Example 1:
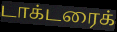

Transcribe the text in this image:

டாக்டரைக்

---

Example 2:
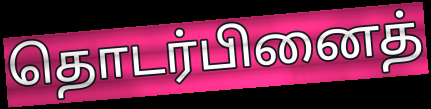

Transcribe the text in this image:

தொடர்பினைத்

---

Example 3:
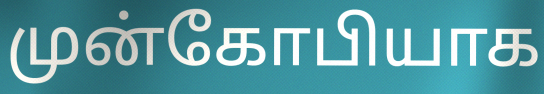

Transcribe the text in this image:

முன்கோபியாக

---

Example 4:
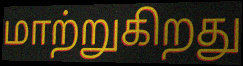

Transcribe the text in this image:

மாற்றுகிறது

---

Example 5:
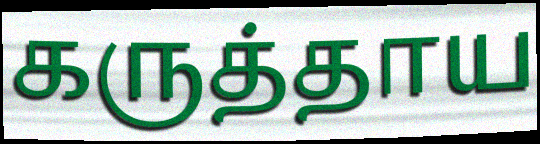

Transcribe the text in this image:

கருத்தாய